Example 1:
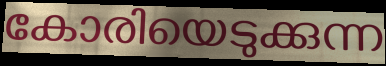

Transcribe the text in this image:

കോരിയെടുക്കുന്ന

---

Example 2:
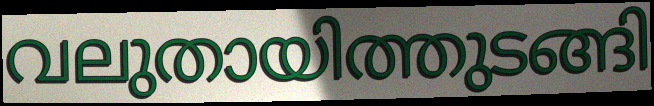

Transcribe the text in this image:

വലുതായിത്തുടങ്ങി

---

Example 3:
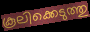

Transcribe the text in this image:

കൂലിക്കെടുത്തു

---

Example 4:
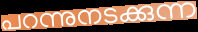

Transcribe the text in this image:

പറന്നുനടക്കുന്ന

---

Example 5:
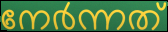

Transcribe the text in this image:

നേർന്നത്